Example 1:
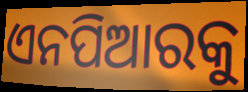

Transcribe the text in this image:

ଏନପିଆରକୁ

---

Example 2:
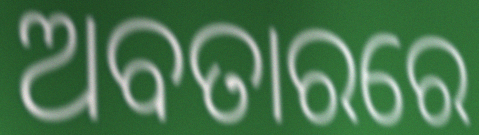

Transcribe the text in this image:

ଅବତାରରେ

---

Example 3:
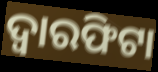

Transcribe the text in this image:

ଦ୍ୱାରଫିଟା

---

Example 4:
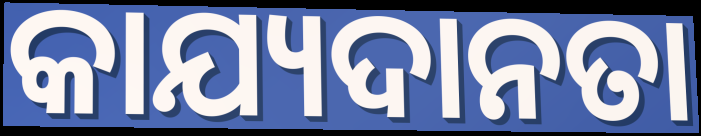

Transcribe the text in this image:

କାଯ୍ୟଦାନତା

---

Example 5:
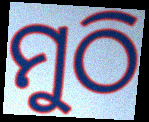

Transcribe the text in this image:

ମୁଠି